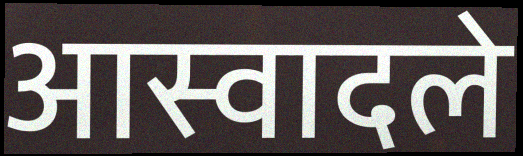
आस्वादले